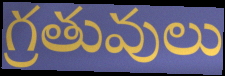
గ్రతువులు